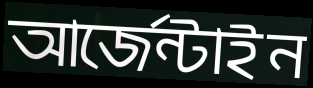
আর্জেন্টাইন